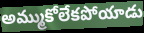
అమ్ముకోలేకపోయాడు